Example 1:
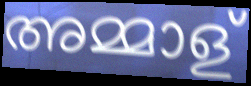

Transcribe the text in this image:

അമ്മാള്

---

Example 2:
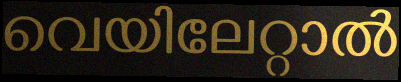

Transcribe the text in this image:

വെയിലേറ്റാൽ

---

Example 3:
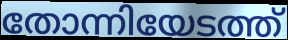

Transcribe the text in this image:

തോന്നിയേടത്ത്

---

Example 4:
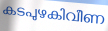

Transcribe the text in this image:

കടപുഴകിവീണ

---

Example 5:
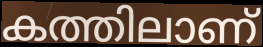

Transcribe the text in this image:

കത്തിലാണ്